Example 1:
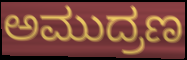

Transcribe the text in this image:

ಅಮುದ್ರಣ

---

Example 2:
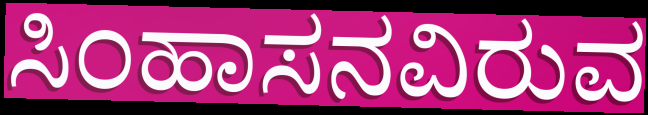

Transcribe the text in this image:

ಸಿಂಹಾಸನವಿರುವ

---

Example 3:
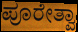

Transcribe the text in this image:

ಪೂರೇತ್ವಾ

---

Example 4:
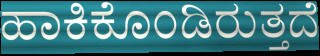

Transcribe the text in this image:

ಹಾಕಿಕೊಂಡಿರುತ್ತದೆ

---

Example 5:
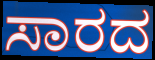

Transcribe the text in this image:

ಸಾರದ